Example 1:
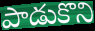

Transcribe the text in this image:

పాడుకొని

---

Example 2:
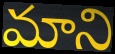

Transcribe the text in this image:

మాని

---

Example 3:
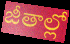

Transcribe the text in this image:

జీతాల్లో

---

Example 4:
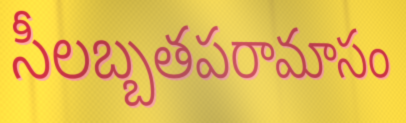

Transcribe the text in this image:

సీలబ్బతపరామాసం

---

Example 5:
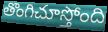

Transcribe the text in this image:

తొంగిచూస్తోంది